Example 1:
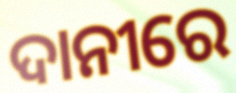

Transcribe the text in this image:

ଦାନୀରେ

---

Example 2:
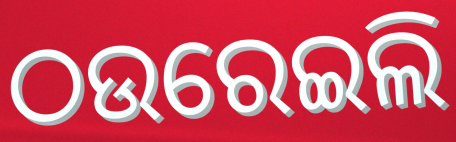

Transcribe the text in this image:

ଠଉରେଇଲି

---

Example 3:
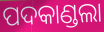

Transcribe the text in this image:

ପଦକାଣ୍ଡଲା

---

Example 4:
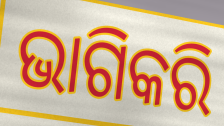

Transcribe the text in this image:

ଭାଗିକରି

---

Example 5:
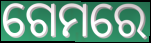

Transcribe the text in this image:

ଗେମରେ